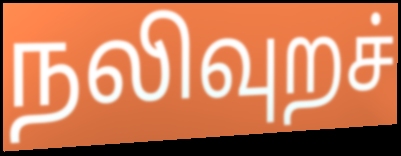
நலிவுறச்